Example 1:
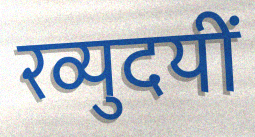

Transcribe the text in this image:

रव्युदयीं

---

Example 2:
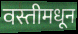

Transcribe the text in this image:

वस्तीमधून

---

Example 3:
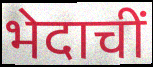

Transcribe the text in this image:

भेदाचीं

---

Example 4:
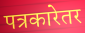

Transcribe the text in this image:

पत्रकारेतर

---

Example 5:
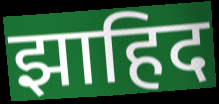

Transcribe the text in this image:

झाहिद